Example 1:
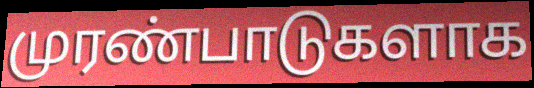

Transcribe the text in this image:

முரண்பாடுகளாக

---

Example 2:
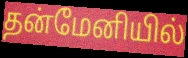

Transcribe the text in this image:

தன்மேனியில்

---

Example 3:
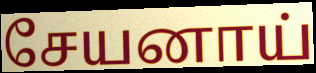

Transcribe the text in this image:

சேயனாய்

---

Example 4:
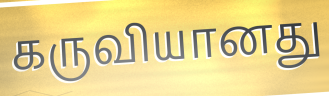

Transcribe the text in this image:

கருவியானது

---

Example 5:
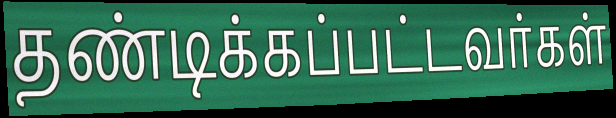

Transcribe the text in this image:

தண்டிக்கப்பட்டவர்கள்